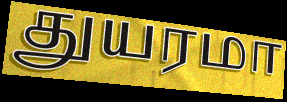
துயரமா